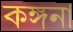
কঙ্গনা